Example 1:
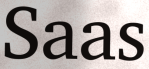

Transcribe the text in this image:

Saas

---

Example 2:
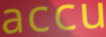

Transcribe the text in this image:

accu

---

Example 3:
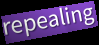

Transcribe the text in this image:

repealing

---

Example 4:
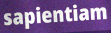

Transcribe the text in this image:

sapientiam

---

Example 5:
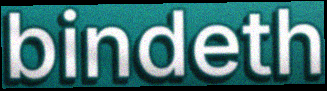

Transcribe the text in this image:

bindeth